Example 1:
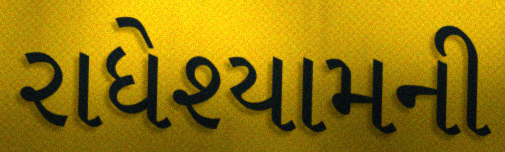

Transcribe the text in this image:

રાધેશ્યામની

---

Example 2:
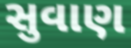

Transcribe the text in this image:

સુવાણ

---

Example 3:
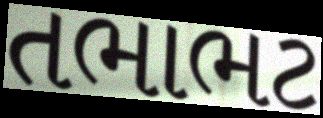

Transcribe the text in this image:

તભાભટ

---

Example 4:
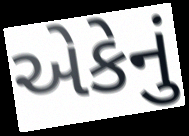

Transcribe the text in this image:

એકેનું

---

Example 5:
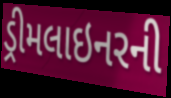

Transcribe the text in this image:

ડ્રીમલાઇનરની